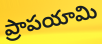
ప్రాపయామి